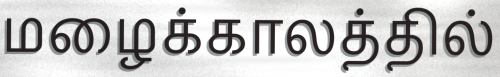
மழைக்காலத்தில்